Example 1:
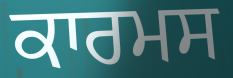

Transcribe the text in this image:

ਕਾਰਮਸ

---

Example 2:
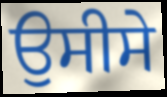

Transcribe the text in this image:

ਉਸੀਸੇ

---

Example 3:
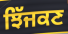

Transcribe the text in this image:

ਝਿੱਜਕਣ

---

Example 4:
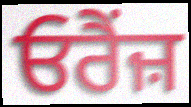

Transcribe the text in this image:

ਓਰੈਂਜ਼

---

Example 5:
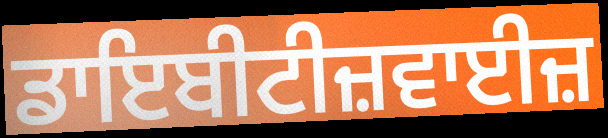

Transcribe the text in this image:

ਡਾਇਬੀਟੀਜ਼ਵਾਈਜ਼